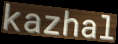
kazhal